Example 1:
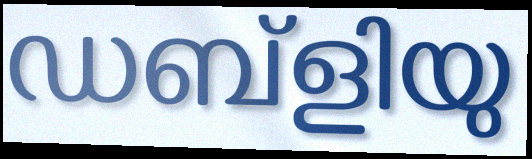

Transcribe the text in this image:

ഡബ്ളിയു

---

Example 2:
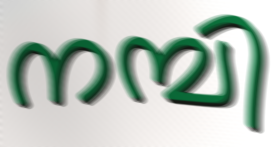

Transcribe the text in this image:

നമ്പി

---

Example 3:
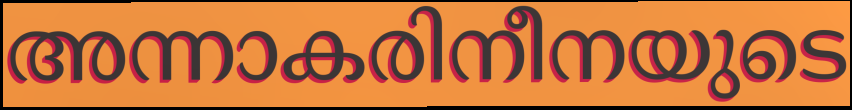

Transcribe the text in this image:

അന്നാകരിനീനയുടെ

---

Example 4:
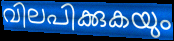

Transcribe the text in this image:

വിലപിക്കുകയും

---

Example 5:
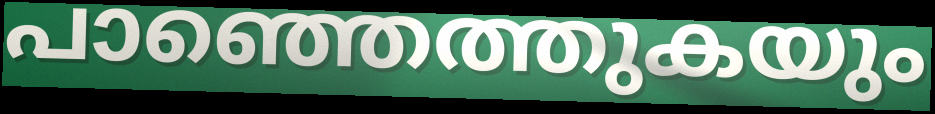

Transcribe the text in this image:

പാഞ്ഞെത്തുകയും